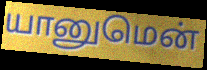
யானுமென்